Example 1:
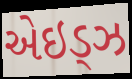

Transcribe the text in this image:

એઇડ્ઝ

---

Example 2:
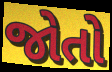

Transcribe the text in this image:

જોતો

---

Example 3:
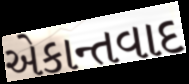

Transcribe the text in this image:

એકાન્તવાદ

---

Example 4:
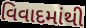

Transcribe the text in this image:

વિવાદમાંથી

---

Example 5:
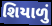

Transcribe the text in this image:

શિયાળું